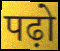
पढ़ो